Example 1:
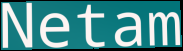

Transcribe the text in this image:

Netam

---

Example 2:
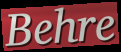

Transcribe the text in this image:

Behre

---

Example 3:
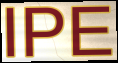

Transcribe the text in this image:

IPE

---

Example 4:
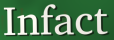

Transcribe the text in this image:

Infact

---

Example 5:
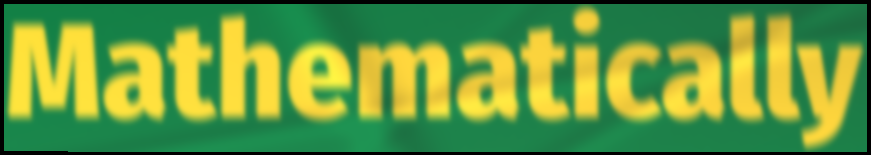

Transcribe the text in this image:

Mathematically